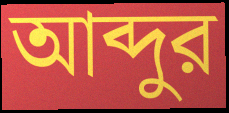
আব্দুর